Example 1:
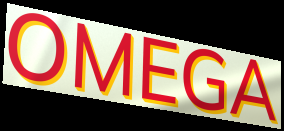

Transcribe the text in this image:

OMEGA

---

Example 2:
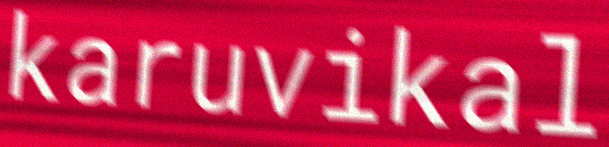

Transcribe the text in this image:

karuvikal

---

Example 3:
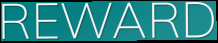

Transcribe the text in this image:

REWARD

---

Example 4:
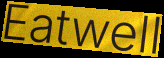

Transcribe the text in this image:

Eatwell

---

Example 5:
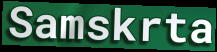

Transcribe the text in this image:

Samskrta